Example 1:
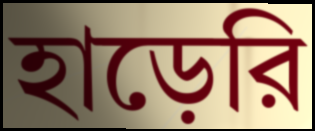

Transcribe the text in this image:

হাড়েরি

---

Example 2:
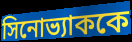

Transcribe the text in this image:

সিনোভ্যাককে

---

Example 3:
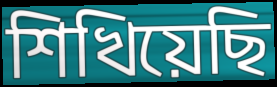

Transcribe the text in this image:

শিখিয়েছি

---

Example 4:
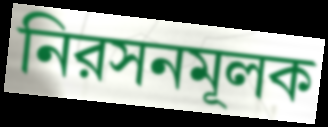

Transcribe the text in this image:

নিরসনমূলক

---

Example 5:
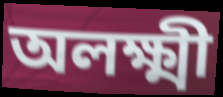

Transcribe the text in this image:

অলক্ষ্মী